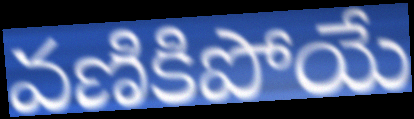
వణికిపోయే